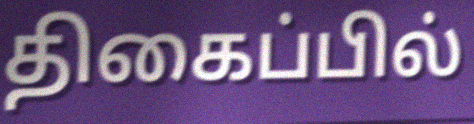
திகைப்பில்